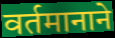
वर्तमानाने